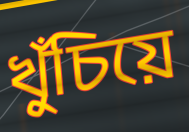
খুঁচিয়ে